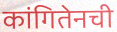
कांगितेनची